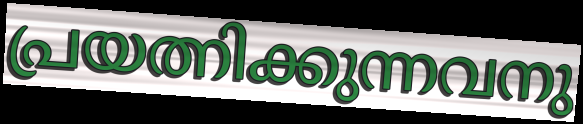
പ്രയത്നിക്കുന്നവനു